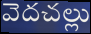
వెదచల్లు